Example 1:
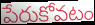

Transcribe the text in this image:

పేరుకోవటం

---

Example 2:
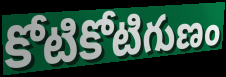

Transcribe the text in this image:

కోటికోటిగుణం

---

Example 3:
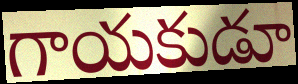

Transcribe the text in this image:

గాయకుడూ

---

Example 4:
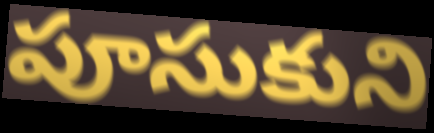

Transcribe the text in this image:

పూసుకుని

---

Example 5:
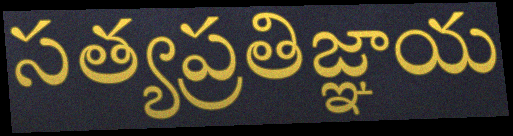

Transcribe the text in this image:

సత్యప్రతిజ్ఞాయ